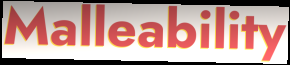
Malleability